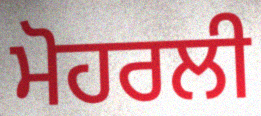
ਮੋਹਰਲੀ